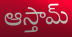
ఆస్తామ్